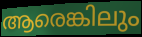
ആരെങ്കിലും